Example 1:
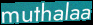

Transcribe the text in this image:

muthalaa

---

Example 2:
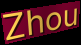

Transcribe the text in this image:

Zhou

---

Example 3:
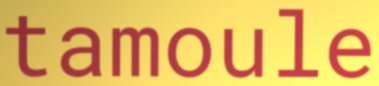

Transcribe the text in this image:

tamoule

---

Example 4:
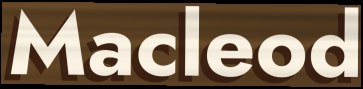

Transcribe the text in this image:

Macleod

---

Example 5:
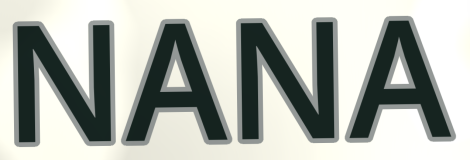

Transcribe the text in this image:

NANA